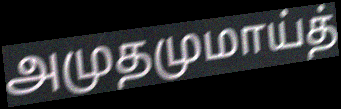
அமுதமுமாய்த்